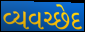
વ્યવચ્છેદ